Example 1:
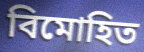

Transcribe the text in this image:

বিমোহিত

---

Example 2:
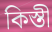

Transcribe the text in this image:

কিস্তী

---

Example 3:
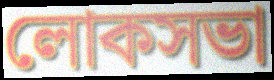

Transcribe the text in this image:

লোকসভা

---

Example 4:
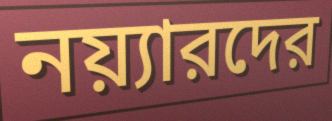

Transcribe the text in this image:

নয়্যারদের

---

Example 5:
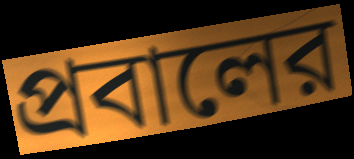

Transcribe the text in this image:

প্রবালের